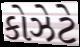
કોઝેટે